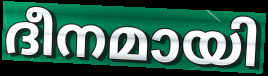
ദീനമായി